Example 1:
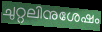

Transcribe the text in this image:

ചുറ്റലിനുശേഷം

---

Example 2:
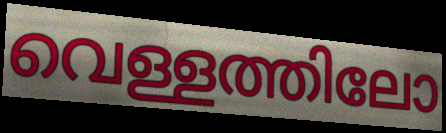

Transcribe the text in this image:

വെള്ളത്തിലോ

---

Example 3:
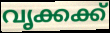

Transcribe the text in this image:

വൃക്കക്ക്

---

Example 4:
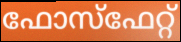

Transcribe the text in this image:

ഫോസ്ഫേറ്റ്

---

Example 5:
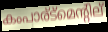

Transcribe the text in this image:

കംപാര്ട്മെന്റില്